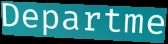
Departme